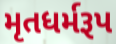
મૃતધર્મરૂપ